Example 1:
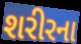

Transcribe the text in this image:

શરીરના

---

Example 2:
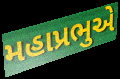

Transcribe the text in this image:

મહાપ્રભુએ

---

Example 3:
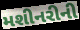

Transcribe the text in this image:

મશીનરીની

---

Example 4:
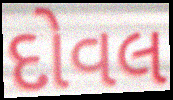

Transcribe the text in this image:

દોવલ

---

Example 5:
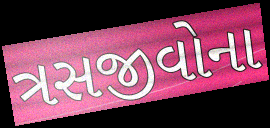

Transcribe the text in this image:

ત્રસજીવોના